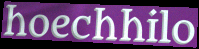
hoechhilo